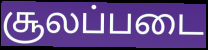
சூலப்படை